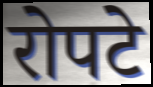
रोपटे